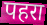
पहरा